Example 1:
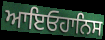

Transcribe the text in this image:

ਆਇਓਹਾਨਿਸ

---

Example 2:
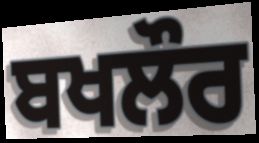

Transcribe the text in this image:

ਬਖਲੌਰ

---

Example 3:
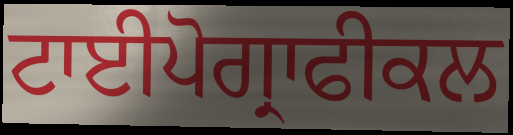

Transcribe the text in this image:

ਟਾਈਪੋਗ੍ਰਾਫੀਕਲ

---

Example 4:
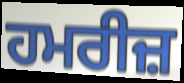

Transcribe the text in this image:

ਹਮਰੀਜ਼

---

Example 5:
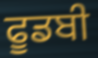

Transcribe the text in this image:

ਫੂਡਬੀ